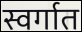
स्वर्गात